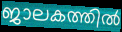
ജാലകത്തിൽ